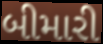
બીમારી